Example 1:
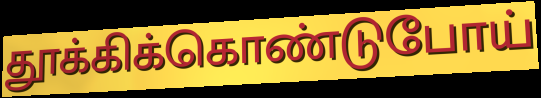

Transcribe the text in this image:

தூக்கிக்கொண்டுபோய்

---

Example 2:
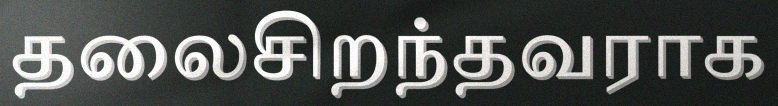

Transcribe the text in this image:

தலைசிறந்தவராக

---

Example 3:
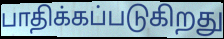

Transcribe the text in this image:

பாதிக்கப்படுகிறது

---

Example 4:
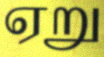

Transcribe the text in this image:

ஏறு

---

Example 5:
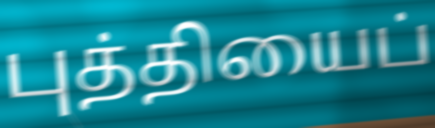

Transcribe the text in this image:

புத்தியைப்